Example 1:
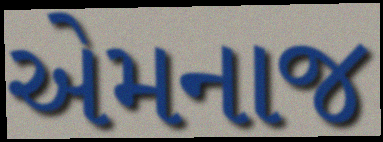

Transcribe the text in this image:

એમનાજ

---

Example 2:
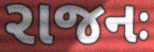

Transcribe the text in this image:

રાજનઃ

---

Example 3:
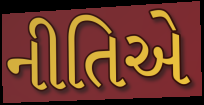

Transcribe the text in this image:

નીતિએ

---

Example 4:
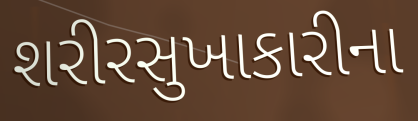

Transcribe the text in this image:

શરીરસુખાકારીના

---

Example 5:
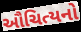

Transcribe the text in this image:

ઔચિત્યનો